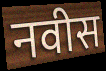
नवीस